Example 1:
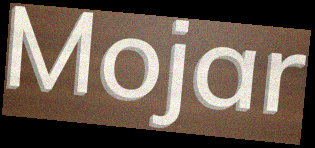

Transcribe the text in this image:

Mojar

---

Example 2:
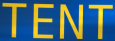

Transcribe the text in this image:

TENT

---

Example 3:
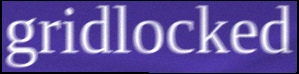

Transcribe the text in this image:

gridlocked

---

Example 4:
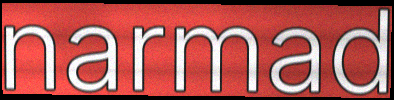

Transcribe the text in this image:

narmad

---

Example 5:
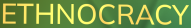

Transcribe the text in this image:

ETHNOCRACY